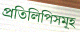
প্ৰতিলিপিসমূহ